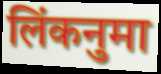
लिंकनुमा